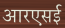
आरएसई